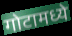
गोटामध्ये